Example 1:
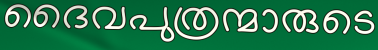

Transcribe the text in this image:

ദൈവപുത്രന്മാരുടെ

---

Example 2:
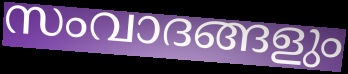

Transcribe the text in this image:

സംവാദങ്ങളും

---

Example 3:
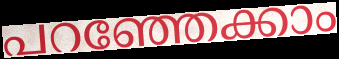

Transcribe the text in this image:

പറഞ്ഞേക്കാം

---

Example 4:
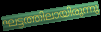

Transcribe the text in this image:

ഘട്ടത്തിലായിരുന്നു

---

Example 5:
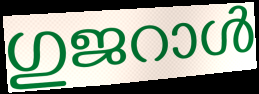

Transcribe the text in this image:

ഗുജറാൾ